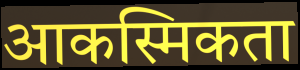
आकस्मिकता